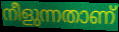
നീളുന്നതാണ്